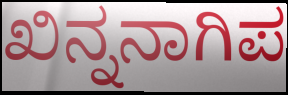
ಖಿನ್ನನಾಗಿಪ